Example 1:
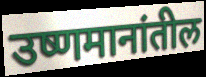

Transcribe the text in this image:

उष्णमानांतील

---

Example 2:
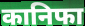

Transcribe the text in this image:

कानिफा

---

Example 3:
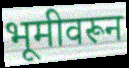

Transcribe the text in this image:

भूमीवरून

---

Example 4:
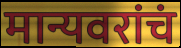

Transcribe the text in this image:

मान्यवरांचं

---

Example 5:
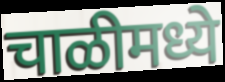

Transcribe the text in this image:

चाळीमध्ये